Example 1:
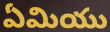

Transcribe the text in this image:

ఏమియు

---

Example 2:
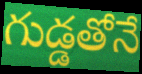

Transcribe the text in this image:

గుడ్డతోనే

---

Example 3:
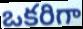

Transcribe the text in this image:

ఒకరిగా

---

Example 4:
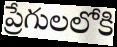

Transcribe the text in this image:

ప్రేగులలోకి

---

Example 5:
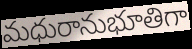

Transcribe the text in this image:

మధురానుభూతిగా